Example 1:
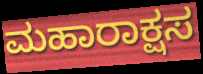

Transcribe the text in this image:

ಮಹಾರಾಕ್ಷಸ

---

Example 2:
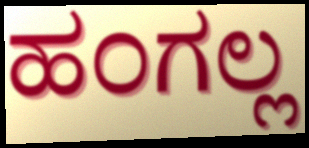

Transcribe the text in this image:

ಹಂಗಲ್ಲ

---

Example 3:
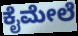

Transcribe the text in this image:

ಕೈಮೇಲೆ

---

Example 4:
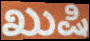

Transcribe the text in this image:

ಖುಷಿ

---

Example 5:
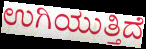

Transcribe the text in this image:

ಉಗಿಯುತ್ತಿದೆ